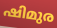
ഷിമുര